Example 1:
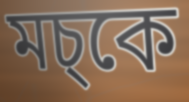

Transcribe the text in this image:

মচ্কে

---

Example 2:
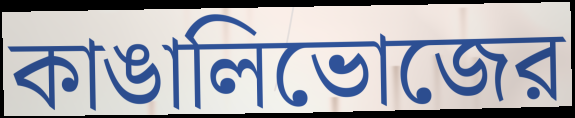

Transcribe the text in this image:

কাঙালিভোজের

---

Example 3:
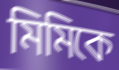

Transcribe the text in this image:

মিমিকে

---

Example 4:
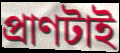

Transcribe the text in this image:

প্রাণটাই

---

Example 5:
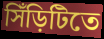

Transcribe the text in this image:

সিঁড়িটিতে